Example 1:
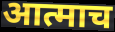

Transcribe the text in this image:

आत्माच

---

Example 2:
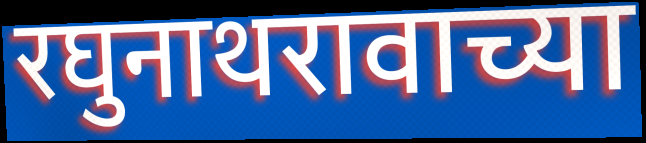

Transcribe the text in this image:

रघुनाथरावाच्या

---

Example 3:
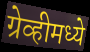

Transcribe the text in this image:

ग्रेव्हीमध्ये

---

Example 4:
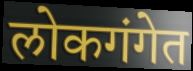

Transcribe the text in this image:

लोकगंगेत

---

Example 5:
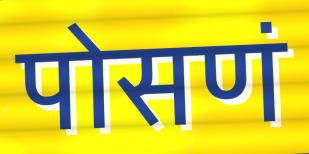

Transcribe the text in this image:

पोसणं